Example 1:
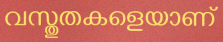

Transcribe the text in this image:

വസ്തുതകളെയാണ്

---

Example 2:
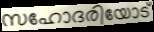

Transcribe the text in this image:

സഹോദരിയോട്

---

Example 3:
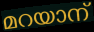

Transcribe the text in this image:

മറയാന്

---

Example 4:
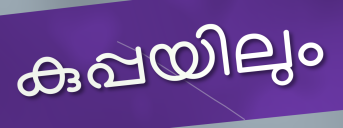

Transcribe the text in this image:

കുപ്പയിലും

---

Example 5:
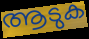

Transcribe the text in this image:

ആടുക